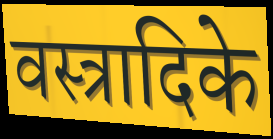
वस्त्रादिके